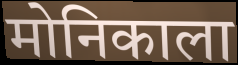
मोनिकाला